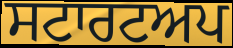
ਸਟਾਰਟਅਪ